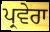
ਪ੍ਰਵੇਰਾ